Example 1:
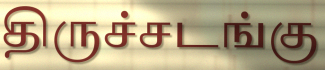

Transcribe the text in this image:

திருச்சடங்கு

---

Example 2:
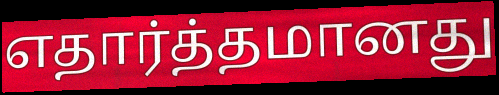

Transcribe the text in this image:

எதார்த்தமானது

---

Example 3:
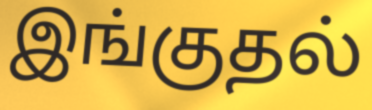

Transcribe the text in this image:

இங்குதல்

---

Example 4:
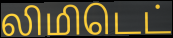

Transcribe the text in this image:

லிமிடெட்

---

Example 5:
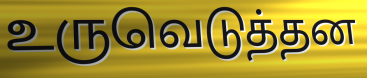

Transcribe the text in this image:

உருவெடுத்தன